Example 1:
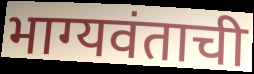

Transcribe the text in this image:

भाग्यवंताची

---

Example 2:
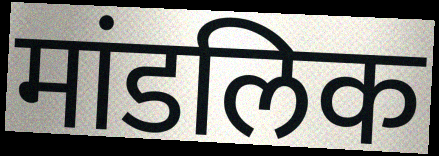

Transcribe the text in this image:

मांडलिक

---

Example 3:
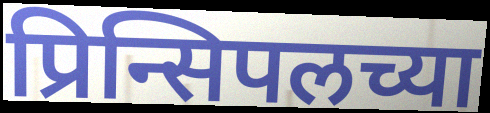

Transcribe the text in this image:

प्रिन्सिपलच्या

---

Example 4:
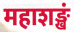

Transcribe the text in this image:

महाशङ्खं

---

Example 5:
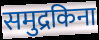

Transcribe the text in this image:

समुद्रकिना